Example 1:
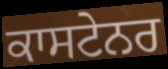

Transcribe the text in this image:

ਕਾਸਟੇਨਰ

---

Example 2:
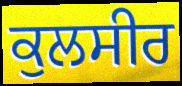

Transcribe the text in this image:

ਕੁਲਸੀਰ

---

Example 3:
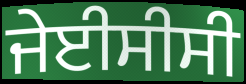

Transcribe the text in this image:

ਜੇਈਸੀਸੀ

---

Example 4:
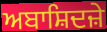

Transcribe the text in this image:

ਅਬਾਸ਼ਿਦਜ਼ੇ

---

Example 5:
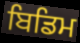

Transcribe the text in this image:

ਬਿਡਿਮ